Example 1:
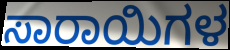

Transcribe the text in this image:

ಸಾರಾಯಿಗಳ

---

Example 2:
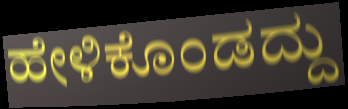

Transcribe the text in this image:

ಹೇಳಿಕೊಂಡದ್ದು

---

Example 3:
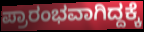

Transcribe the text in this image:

ಪ್ರಾರಂಭವಾಗಿದ್ದಕ್ಕೆ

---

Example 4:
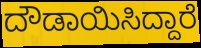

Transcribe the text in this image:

ದೌಡಾಯಿಸಿದ್ದಾರೆ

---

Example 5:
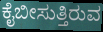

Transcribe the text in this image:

ಕೈಬೀಸುತ್ತಿರುವ